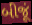
બીજૂં